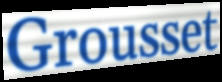
Grousset